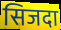
सिजदा